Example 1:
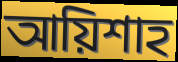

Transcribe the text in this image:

আয়িশাহ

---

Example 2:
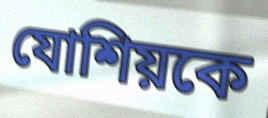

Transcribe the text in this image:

যোশিয়কে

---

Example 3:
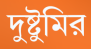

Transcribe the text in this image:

দুষ্টুমির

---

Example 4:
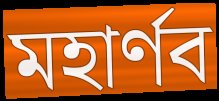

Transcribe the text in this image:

মহার্ণব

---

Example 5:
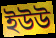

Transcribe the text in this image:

ইউউ